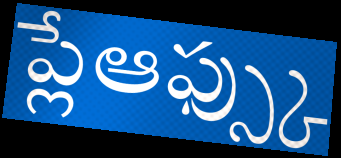
ప్లేఆఫ్స్కు